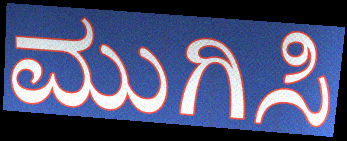
ಮುಗಿಸಿ